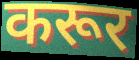
करूर